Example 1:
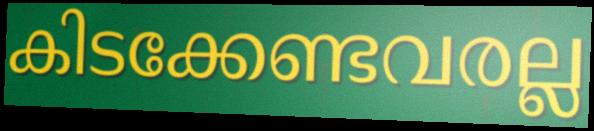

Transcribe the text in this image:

കിടക്കേണ്ടവരല്ല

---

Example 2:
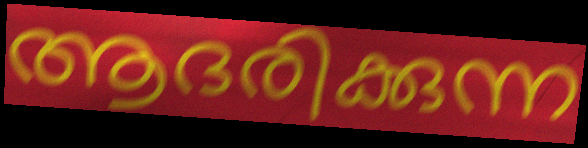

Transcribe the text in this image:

ആദരിക്കുന്ന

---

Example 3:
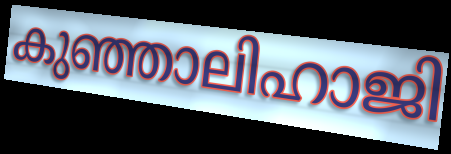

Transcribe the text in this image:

കുഞ്ഞാലിഹാജി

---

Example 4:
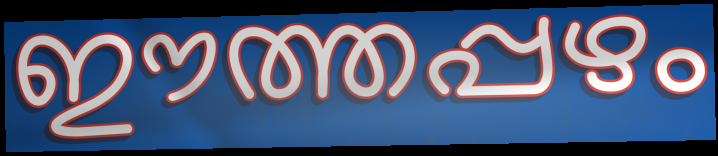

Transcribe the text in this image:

ഈത്തപ്പഴം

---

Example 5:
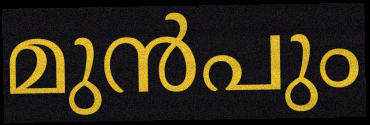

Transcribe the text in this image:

മുൻപും